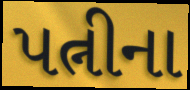
પત્નીના